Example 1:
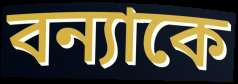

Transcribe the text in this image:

বন্যাকে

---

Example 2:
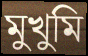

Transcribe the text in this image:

মুখুমি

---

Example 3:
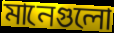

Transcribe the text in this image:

মানেগুলো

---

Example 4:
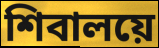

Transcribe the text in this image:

শিবালয়ে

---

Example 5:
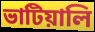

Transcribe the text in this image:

ভাটিয়ালি